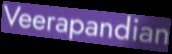
Veerapandian